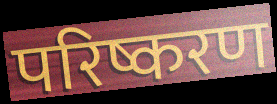
परिष्करण